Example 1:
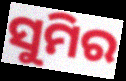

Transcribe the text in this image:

ସୁମିର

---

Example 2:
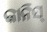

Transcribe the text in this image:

କାନିସ୍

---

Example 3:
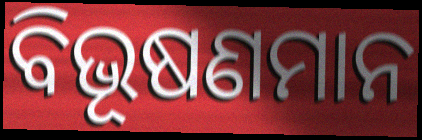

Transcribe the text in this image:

ବିଭୂଷଣମାନ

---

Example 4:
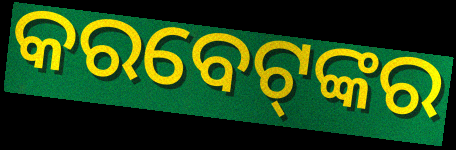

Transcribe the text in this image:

କରବେଟ୍‌ଙ୍କର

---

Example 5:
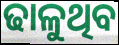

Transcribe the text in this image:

ଢାଳୁଥିବ